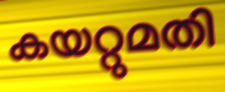
കയറ്റുമതി